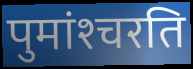
पुमांश्चरति